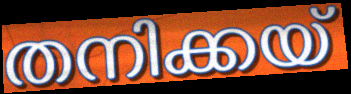
തനിക്കയ്